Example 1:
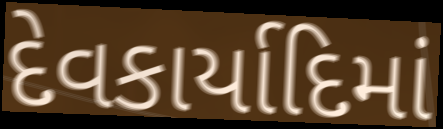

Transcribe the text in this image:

દેવકાર્યાદિમાં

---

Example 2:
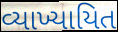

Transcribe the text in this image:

વ્યાખ્યાયિત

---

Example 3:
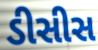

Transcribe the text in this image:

ડીસીસ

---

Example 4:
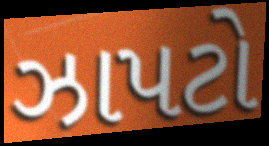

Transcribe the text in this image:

ઝાપટો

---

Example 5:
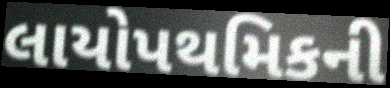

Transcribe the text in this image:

લાયોપથમિકની